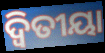
ଦ୍ୱିତୀୟା